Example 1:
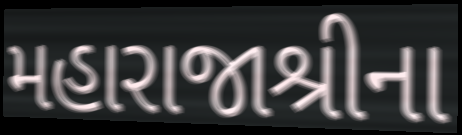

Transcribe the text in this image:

મહારાજાશ્રીના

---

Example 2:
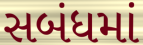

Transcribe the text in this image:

સબંધમાં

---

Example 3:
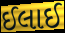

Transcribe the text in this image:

ઈલાઈ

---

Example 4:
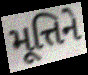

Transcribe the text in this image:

મૂત્તિને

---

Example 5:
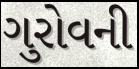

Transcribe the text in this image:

ગુરોવની